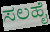
ಸಲಹೈ